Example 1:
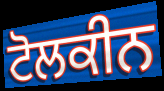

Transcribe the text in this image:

ਟੋਲਕੀਨ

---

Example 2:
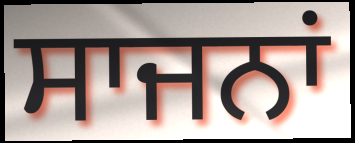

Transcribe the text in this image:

ਸਾਜਨਾਂ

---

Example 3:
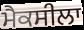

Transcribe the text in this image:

ਮੈਕਸੀਲਾ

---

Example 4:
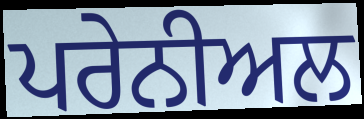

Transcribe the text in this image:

ਪਰੇਨੀਅਲ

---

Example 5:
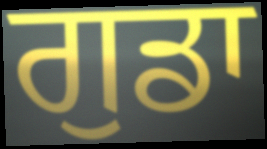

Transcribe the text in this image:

ਗੁਡਾ